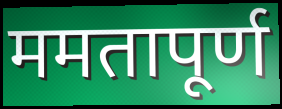
ममतापूर्ण